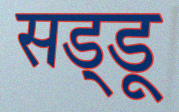
सड्‌डू